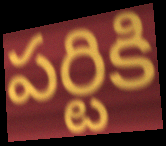
పర్టికి